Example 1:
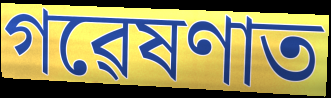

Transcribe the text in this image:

গৱেষণাত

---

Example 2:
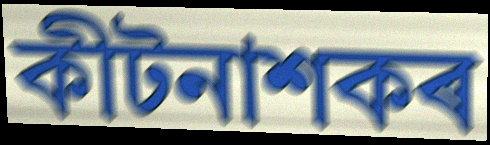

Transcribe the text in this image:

কীটনাশকৰ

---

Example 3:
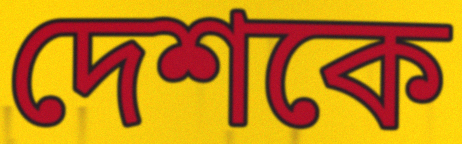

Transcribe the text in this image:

দেশকে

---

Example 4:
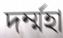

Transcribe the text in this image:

দৰ্ম্মহা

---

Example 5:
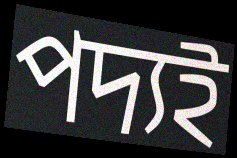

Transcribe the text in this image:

পদ্যই